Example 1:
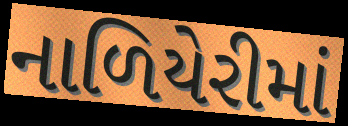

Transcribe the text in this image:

નાળિયેરીમાં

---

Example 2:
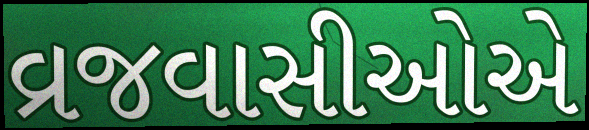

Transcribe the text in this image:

વ્રજવાસીઓએ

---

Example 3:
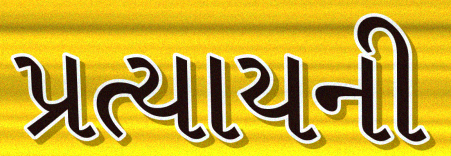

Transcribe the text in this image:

પ્રત્યાયની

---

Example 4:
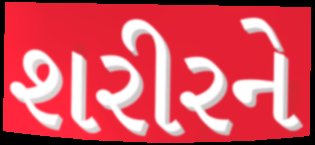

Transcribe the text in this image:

શરીરને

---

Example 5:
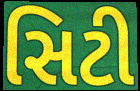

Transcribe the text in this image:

સિટી